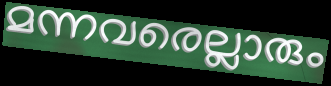
മന്നവരെല്ലാരും